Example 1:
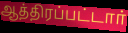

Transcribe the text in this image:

ஆத்திரப்பட்டார்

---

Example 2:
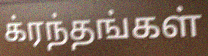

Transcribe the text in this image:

க்ரந்தங்கள்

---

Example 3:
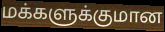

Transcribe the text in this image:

மக்களுக்குமான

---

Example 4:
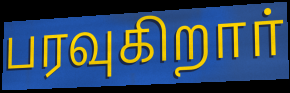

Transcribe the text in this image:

பரவுகிறார்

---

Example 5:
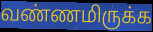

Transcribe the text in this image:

வண்ணமிருக்க